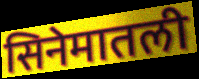
सिनेमातली